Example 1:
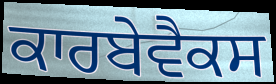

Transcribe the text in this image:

ਕਾਰਬੇਵੈਕਸ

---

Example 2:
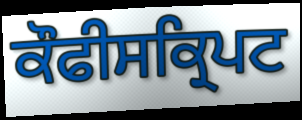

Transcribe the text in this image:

ਕੌਫੀਸਕ੍ਰਿਪਟ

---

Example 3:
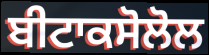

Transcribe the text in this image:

ਬੀਟਾਕਸੋਲੋਲ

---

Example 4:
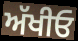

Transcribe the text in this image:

ਅੱਖੀਓ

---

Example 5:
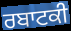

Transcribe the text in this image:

ਰਬਾਟਕੀ